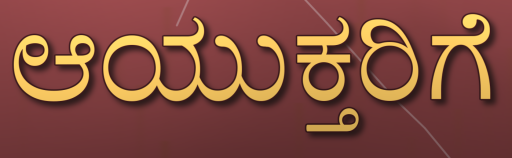
ಆಯುಕ್ತರಿಗೆ